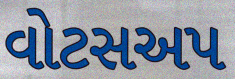
વોટસઅપ